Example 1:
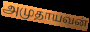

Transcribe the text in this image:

அமுதாயவன்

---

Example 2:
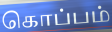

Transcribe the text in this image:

கொப்பம்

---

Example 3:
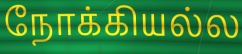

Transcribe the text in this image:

நோக்கியல்ல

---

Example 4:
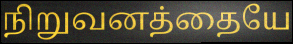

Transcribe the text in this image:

நிறுவனத்தையே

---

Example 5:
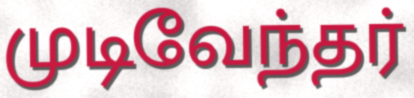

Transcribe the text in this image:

முடிவேந்தர்